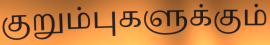
குறும்புகளுக்கும்